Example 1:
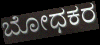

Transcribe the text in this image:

ಬೋಧಕರ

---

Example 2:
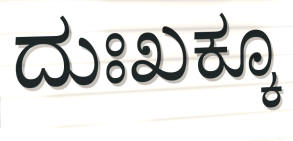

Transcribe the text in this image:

ದುಃಖಕ್ಕೂ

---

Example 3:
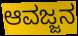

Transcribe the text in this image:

ಆವಜ್ಜನ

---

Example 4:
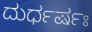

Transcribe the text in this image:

ದುರ್ಧರ್ಷಃ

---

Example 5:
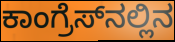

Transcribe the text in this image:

ಕಾಂಗ್ರೆಸ್‌ನಲ್ಲಿನ